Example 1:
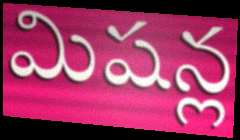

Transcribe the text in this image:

మిషన్ల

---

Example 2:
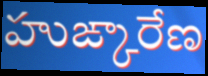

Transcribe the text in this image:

హుఙ్కారేణ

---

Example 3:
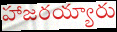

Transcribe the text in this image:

హాజరయ్యారు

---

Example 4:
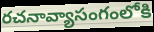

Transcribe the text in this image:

రచనావ్యాసంగంలోకి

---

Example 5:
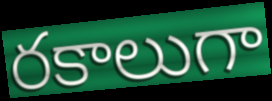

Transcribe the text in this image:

రకాలుగా